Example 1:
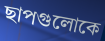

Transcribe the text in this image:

ছাপগুলোকে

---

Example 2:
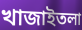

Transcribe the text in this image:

খাজাইতলা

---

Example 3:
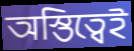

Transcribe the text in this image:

অস্তিত্বেই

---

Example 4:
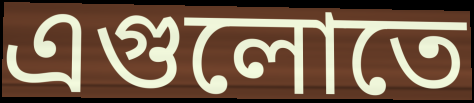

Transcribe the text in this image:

এগুলোতে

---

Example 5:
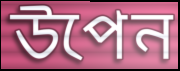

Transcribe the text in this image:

উপেন